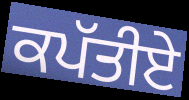
ਕਪੱਤੀਏ